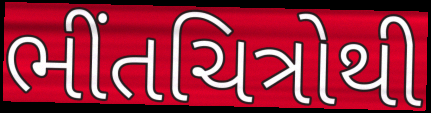
ભીંતચિત્રોથી